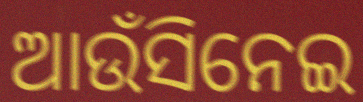
ଆଉଁସିନେଇ